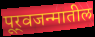
पूर्वजन्मातील